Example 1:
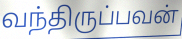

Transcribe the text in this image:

வந்திருப்பவன்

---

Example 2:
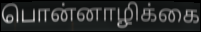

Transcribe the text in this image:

பொன்னாழிக்கை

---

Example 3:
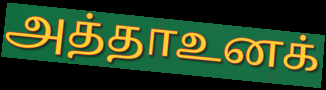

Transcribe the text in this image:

அத்தாஉனக்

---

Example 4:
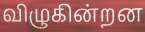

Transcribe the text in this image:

விழுகின்றன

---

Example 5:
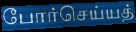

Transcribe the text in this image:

போர்செய்யத்